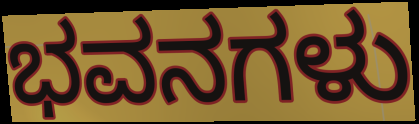
ಭವನಗಳು